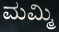
ಮಮ್ಮಿ